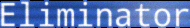
Eliminator